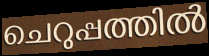
ചെറുപ്പത്തിൽ